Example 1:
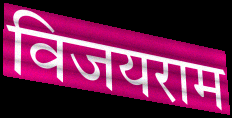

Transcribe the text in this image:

विजयराम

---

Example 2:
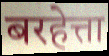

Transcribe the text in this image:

बरहेत्ता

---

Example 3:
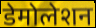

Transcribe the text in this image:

डेमोलेशन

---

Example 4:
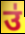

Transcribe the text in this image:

उ॑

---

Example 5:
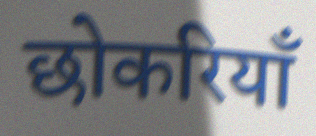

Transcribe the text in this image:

छोकरियाँ